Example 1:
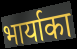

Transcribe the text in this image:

भार्याका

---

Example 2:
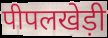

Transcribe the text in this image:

पीपलखेड़ी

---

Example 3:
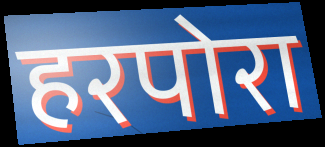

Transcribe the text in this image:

हरपोरा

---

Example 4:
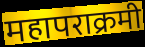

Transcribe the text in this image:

महापराक्रमी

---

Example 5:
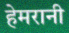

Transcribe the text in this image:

हेमरानी